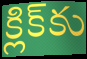
క్లిక్‌కు